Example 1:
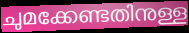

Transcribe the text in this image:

ചുമക്കേണ്ടതിനുള്ള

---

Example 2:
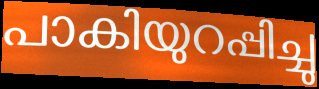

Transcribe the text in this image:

പാകിയുറപ്പിച്ചു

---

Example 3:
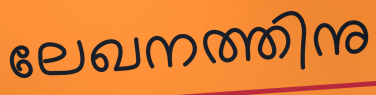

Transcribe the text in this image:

ലേഖനത്തിനു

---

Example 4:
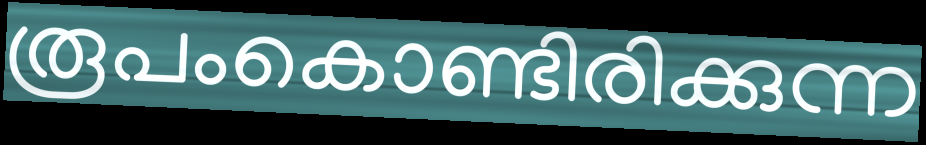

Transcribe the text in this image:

രൂപംകൊണ്ടിരിക്കുന്ന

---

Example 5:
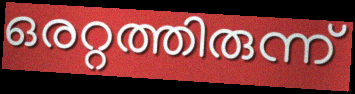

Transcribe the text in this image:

ഒരറ്റത്തിരുന്ന്